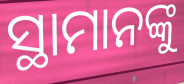
ସ୍ଥାମାନଙ୍କୁ